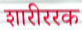
शारीररक